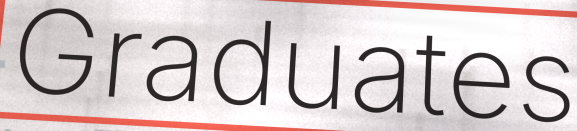
Graduates